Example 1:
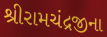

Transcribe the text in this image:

શ્રીરામચંદ્રજીના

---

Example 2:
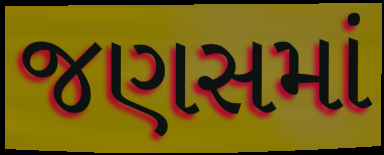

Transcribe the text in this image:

જણસમાં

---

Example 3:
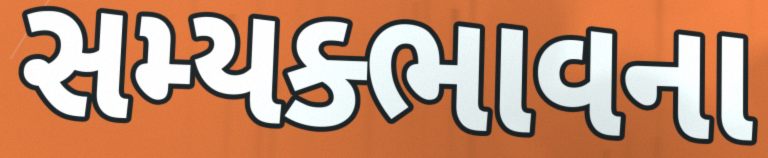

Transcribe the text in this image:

સમ્યક્ભાવના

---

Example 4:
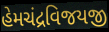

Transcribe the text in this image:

હેમચંદ્રવિજયજી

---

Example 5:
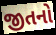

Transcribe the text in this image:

જીતનો